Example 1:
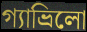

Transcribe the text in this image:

গ্যাভ্রিলো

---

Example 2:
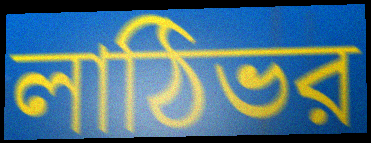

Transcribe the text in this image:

লাঠিভর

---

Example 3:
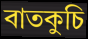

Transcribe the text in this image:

বাতকুচি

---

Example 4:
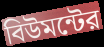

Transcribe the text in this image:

বিউমন্টের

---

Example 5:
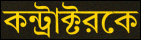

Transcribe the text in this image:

কন্ট্রাক্টরকে